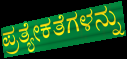
ಪ್ರತ್ಯೇಕತೆಗಳನ್ನು